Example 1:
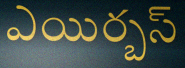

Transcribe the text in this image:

ఎయిర్బస్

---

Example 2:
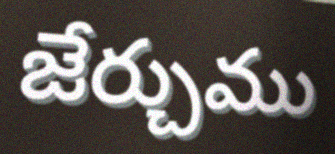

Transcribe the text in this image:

జేర్చుము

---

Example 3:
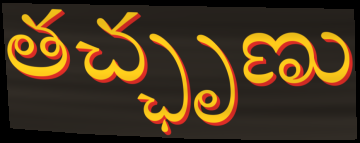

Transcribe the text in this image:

తచ్ఛృణు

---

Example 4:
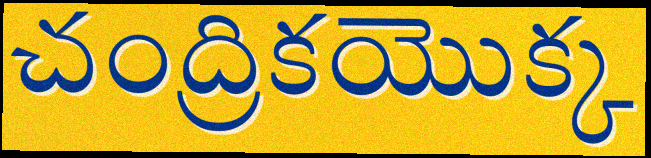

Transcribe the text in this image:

చంద్రికయొక్క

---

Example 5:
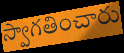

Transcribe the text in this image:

స్వాగతించారు